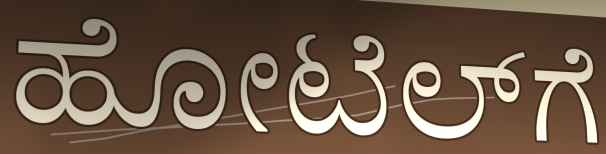
ಹೋಟೆಲ್‌ಗೆ